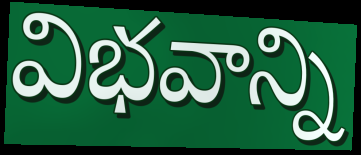
విభవాన్ని